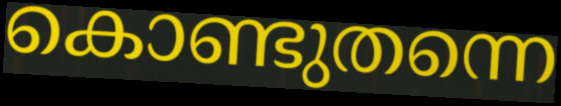
കൊണ്ടുതന്നെ